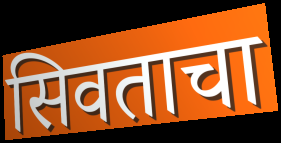
सिवताचा